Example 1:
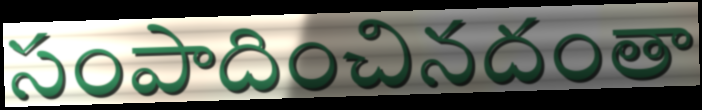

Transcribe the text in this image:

సంపాదించినదంతా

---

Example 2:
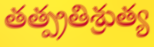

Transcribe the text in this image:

తత్ప్రతిశ్రుత్య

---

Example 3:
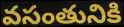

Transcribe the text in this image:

వసంతునికి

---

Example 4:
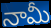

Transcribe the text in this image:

నామీ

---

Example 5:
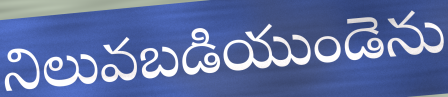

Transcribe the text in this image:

నిలువబడియుండెను